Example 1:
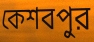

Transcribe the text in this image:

কেশবপুর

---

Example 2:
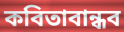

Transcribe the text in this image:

কবিতাবান্ধব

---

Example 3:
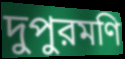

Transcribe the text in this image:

দুপুরমণি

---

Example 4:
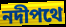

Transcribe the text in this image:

নদীপথে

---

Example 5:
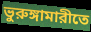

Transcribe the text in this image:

ভুরুঙ্গামারীতে